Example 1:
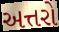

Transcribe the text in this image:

અત્તરો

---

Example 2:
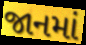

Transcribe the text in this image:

જાનમાં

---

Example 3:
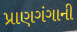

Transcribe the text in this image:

પ્રાણગંગાની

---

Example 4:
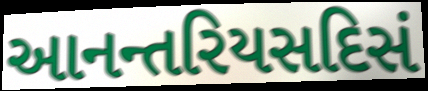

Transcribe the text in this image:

આનન્તરિયસદિસં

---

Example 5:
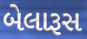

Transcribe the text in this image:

બેલારૂસ